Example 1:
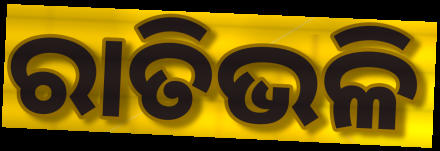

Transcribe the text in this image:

ରାତିଭଳି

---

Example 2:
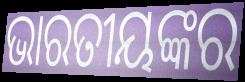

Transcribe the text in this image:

ଭାରତୀୟଙ୍କର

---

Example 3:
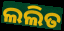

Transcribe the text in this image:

ଲଲିତ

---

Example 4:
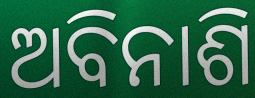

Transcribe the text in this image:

ଅବିନାଶି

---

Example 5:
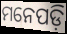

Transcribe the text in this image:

ମନେପଡ଼ି